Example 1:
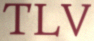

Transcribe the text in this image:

TLV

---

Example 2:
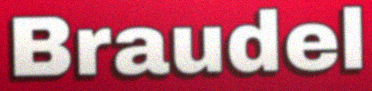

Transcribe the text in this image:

Braudel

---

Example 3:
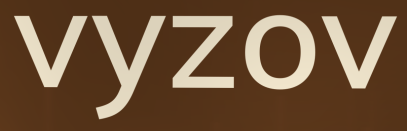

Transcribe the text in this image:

vyzov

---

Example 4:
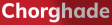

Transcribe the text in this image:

Chorghade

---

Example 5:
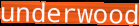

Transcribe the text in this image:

underwood